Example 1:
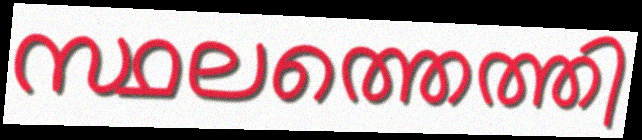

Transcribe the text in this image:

സ്ഥലത്തെത്തി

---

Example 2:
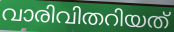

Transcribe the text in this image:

വാരിവിതറിയത്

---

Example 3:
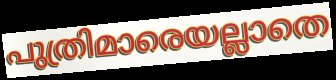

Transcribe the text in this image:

പുത്രിമാരെയല്ലാതെ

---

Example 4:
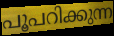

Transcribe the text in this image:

പൂപറിക്കുന്ന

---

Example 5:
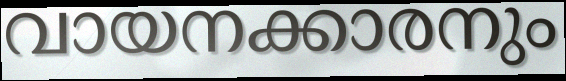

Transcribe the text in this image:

വായനക്കാരനും